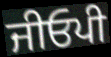
ਜੀਓਪੀ